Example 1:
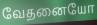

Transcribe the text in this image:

வேதனையோ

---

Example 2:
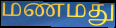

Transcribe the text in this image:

மணமது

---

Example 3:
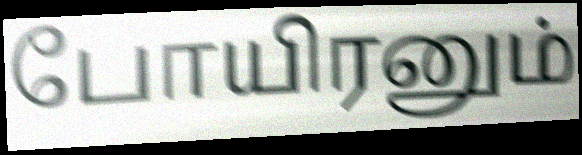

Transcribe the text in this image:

போயிரனும்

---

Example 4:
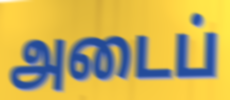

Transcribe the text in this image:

அடைப்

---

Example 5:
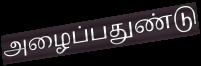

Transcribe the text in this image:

அழைப்பதுண்டு